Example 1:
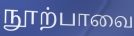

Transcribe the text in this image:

நூற்பாவை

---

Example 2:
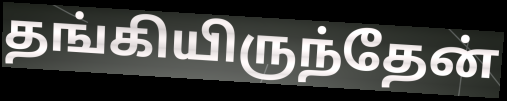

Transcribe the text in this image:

தங்கியிருந்தேன்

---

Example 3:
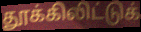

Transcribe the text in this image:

தூக்கிலிட்டுக்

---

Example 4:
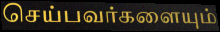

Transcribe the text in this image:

செய்பவர்களையும்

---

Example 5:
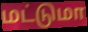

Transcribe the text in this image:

மட்டுமா